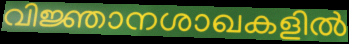
വിജ്ഞാനശാഖകളിൽ